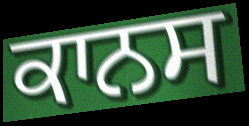
ਕਾਨਸ